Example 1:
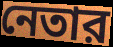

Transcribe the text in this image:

নেতার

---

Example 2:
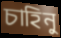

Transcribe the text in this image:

চাহিনু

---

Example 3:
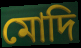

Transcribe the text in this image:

মোদি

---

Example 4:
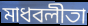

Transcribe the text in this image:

মাধবলীতা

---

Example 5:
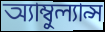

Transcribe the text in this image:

অ্যাম্বুল্যান্স